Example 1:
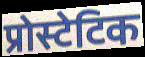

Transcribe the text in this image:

प्रोस्टेटिक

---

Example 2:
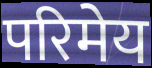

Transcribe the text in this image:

परिमेय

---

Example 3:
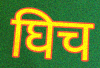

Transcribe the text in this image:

घिच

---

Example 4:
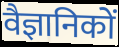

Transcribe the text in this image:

वैज्ञानिकों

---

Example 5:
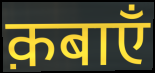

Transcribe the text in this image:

क़बाएँ